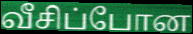
வீசிப்போன